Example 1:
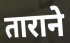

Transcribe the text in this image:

ताराने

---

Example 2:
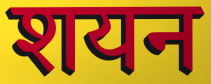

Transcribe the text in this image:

शयन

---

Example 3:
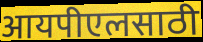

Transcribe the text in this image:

आयपीएलसाठी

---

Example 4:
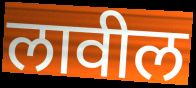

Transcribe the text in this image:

लावील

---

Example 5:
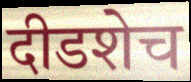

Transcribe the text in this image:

दीडशेच